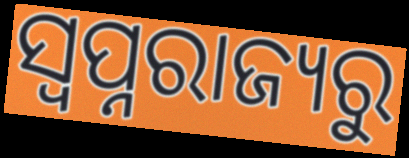
ସ୍ୱପ୍ନରାଜ୍ୟରୁ